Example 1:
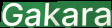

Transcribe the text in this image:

Gakara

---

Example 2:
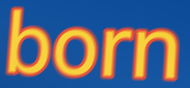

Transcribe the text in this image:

born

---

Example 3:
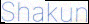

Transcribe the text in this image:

Shakun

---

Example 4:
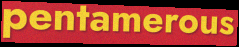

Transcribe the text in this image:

pentamerous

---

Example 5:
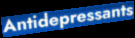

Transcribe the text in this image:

Antidepressants